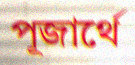
পূজার্থে